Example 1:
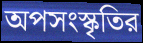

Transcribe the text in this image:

অপসংস্কৃতির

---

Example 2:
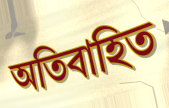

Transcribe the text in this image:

অতিবাহিত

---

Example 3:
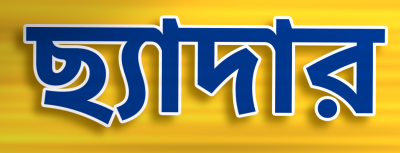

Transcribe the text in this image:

ছ্যাদার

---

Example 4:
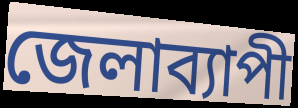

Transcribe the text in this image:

জেলাব্যাপী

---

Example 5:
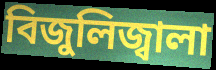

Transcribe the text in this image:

বিজুলিজ্বালা